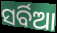
ସର୍ବିଆ